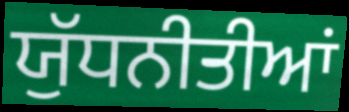
ਯੁੱਧਨੀਤੀਆਂ